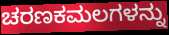
ಚರಣಕಮಲಗಳನ್ನು